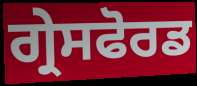
ਗ੍ਰੇਸਫੋਰਡ